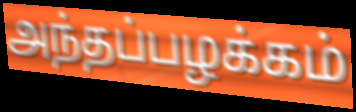
அந்தப்பழக்கம்